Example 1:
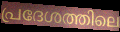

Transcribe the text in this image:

പ്രദേശത്തിലെ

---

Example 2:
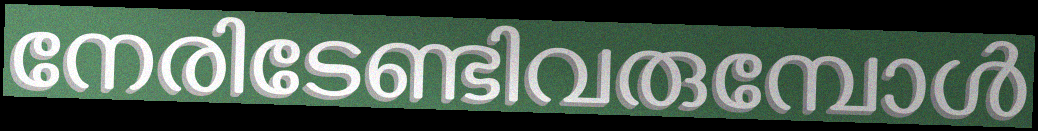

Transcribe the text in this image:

നേരിടേണ്ടിവരുമ്പോൾ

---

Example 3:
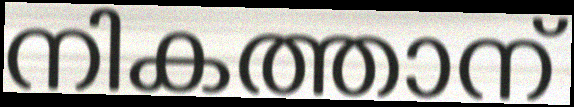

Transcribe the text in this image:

നികത്താന്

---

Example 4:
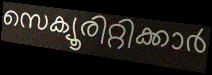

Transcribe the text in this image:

സെക്യൂരിറ്റിക്കാർ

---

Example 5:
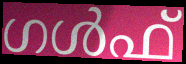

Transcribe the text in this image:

ഗൾഫ്